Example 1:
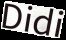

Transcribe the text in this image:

Didi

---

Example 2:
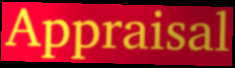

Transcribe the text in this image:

Appraisal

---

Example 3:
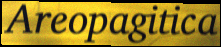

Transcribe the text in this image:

Areopagitica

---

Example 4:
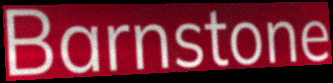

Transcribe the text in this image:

Barnstone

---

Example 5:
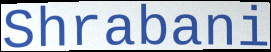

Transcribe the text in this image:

Shrabani